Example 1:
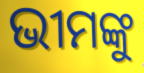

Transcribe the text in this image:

ଭୀମଙ୍କୁ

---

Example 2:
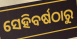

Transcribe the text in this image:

ସେହିବର୍ଷଠାରୁ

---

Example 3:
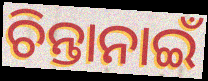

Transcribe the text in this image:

ଚିନ୍ତାନାଇଁ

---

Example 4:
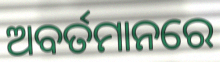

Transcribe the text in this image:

ଅବର୍ତମାନରେ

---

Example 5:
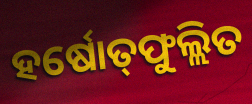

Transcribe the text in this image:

ହର୍ଷୋତ୍‌ଫୁଲ୍ଲିତ